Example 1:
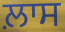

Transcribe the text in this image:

ਲ਼ਾਸ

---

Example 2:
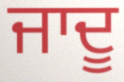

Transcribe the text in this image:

ਜਾਦੂ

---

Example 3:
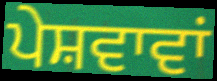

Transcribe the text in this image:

ਪੇਸ਼ਵਾਵਾਂ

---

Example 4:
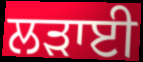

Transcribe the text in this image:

ਲੜਾਈ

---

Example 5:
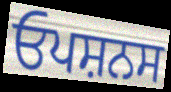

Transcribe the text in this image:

ਓਪਸ਼ਨਸ